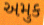
અમુક